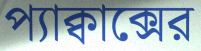
প্যাক্বাক্সের